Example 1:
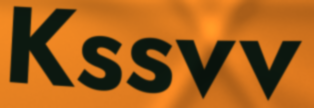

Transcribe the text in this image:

Kssvv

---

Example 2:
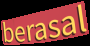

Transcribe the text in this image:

berasal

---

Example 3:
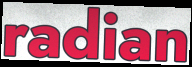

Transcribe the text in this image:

radian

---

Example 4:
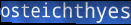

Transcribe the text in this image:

osteichthyes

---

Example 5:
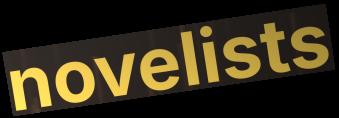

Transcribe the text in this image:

novelists